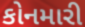
કોનમારી